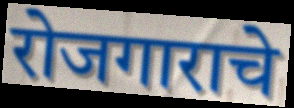
रोजगाराचे